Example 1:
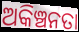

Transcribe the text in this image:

ଅକିଞ୍ଚନତା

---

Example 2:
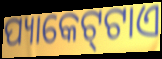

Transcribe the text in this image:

ପ୍ୟାକେଟ୍‌ଟାଏ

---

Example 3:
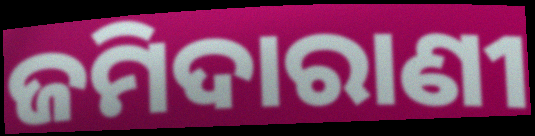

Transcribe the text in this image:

ଜମିଦାରାଣୀ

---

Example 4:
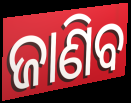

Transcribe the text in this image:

ଜାଣିବ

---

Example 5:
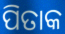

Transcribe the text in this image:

ପିତାକ